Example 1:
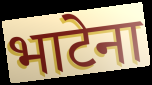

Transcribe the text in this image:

भाटेना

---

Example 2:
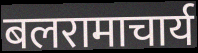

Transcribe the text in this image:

बलरामाचार्य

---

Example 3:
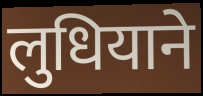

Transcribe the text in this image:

लुधियाने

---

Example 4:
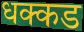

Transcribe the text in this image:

धक्कड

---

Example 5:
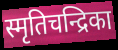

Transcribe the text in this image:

स्मृतिचन्द्रिका